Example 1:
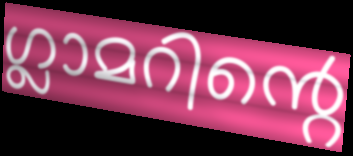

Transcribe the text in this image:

ഗ്ലാമറിന്റെ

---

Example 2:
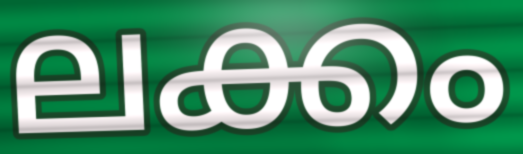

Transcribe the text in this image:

ലക്കം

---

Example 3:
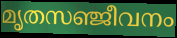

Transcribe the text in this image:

മൃതസഞ്ജീവനം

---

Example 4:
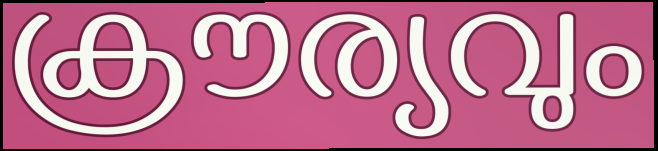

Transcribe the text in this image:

ക്രൗര്യവും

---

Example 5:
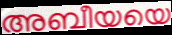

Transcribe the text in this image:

അബീയയെ